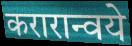
करारान्वये